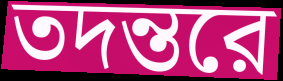
তদন্তরে